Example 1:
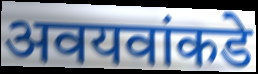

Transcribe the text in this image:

अवयवांकडे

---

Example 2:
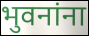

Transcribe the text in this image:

भुवनांना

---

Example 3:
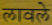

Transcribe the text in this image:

लावले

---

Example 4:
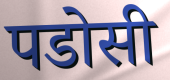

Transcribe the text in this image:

पडोसी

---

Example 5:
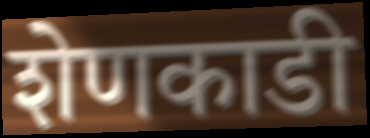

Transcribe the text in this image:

शेणकाडी